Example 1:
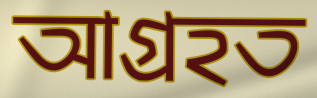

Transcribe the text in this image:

আগ্ৰহত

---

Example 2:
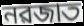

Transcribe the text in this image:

নৱজাত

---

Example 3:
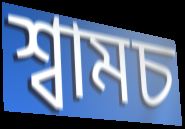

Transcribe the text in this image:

শ্বামচ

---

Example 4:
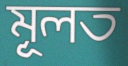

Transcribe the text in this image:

মূলত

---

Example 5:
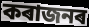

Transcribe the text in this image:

কৰাজনৰ